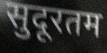
सुदूरतम